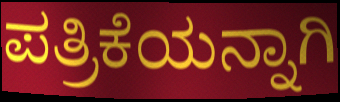
ಪತ್ರಿಕೆಯನ್ನಾಗಿ